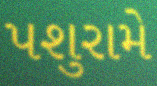
પશુરામે